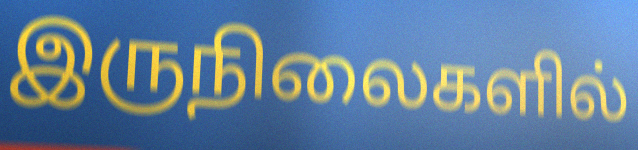
இருநிலைகளில்